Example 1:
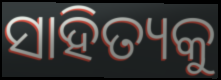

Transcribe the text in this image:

ସାହିତ୍ୟକୁ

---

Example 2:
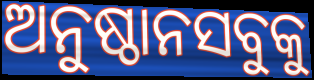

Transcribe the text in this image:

ଅନୁଷ୍ଠାନସବୁକୁ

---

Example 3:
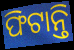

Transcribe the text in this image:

ଫିଟାନ୍ତି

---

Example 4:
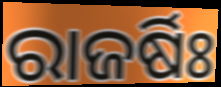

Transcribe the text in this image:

ରାଜର୍ଷିଃ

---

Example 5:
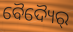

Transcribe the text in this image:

ବୈଦ୍ୟୈର୍